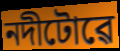
নদীটোৱে